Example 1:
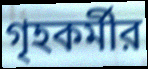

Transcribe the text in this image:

গৃহকর্মীর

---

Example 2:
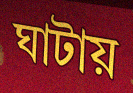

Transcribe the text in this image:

ঘাটায়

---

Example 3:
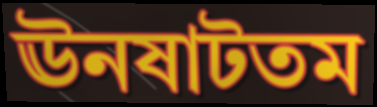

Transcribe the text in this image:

ঊনষাটতম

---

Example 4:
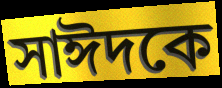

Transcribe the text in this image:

সাঈদকে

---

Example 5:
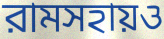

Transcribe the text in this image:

রামসহায়ও